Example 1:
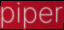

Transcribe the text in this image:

piper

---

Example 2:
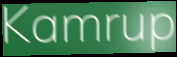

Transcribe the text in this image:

Kamrup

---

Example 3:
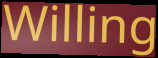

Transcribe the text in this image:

Willing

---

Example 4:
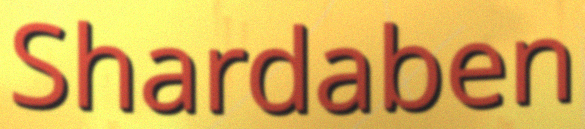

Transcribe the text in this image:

Shardaben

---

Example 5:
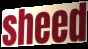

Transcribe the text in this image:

sheed